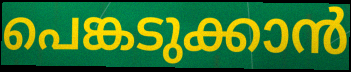
പെങ്കടുക്കാൻ